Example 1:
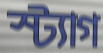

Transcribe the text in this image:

স্ট্যাগ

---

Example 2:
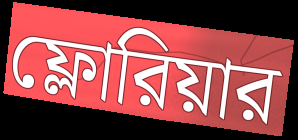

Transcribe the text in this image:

ফ্লোরিয়ার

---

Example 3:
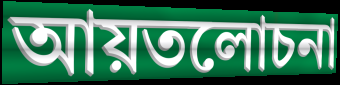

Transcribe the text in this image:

আয়তলোচনা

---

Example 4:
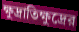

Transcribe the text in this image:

ক্ষুদ্রাতিক্ষুদ্রের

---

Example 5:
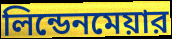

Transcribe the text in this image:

লিন্ডেনমেয়ার